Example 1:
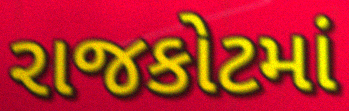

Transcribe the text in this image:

રાજકોટમાં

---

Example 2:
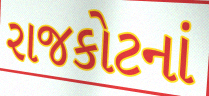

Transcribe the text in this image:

રાજકોટનાં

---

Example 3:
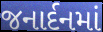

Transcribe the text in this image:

જનાર્દનમાં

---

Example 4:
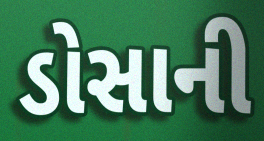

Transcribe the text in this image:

ડોસાની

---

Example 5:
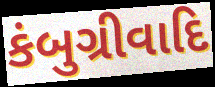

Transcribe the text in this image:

કંબુગ્રીવાદિ